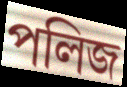
পলিজ